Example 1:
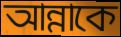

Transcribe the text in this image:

আন্নাকে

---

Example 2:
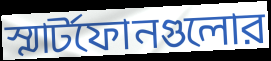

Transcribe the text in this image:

স্মার্টফোনগুলোর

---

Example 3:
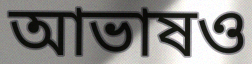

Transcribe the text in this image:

আভাষও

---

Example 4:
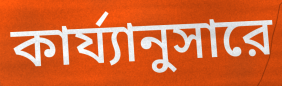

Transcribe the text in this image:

কার্য্যানুসারে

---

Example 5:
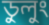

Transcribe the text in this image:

ডুলুং